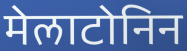
मेलाटोनिन